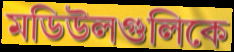
মডিউলগুলিকে